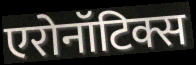
एरोनॉटिक्स